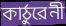
কাঠুরেনী